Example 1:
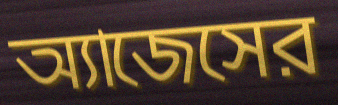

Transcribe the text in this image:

অ্যাজেসের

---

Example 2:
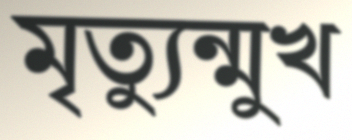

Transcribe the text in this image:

মৃত্যুন্মুখ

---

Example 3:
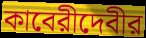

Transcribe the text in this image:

কাবেরীদেবীর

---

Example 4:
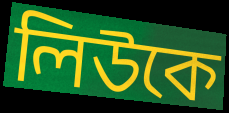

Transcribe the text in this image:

লিউকে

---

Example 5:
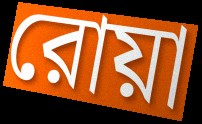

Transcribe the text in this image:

রোয়া